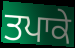
ਤਪਾਕੇ